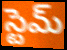
స్టెమ్